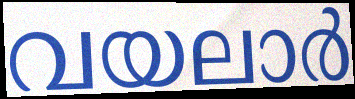
വയലാർ